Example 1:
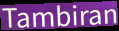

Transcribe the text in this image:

Tambiran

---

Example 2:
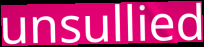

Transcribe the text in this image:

unsullied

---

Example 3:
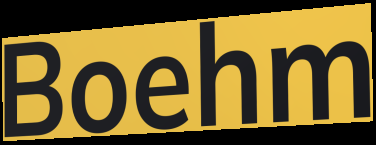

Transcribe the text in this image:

Boehm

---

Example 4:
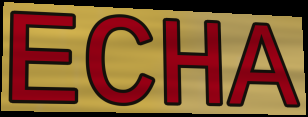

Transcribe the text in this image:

ECHA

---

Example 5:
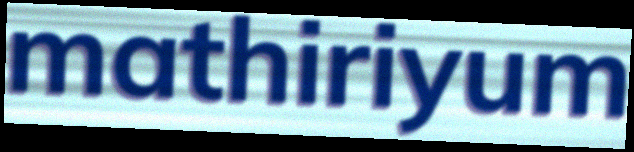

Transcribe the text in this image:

mathiriyum